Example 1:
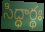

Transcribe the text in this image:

సిద్ధార్థః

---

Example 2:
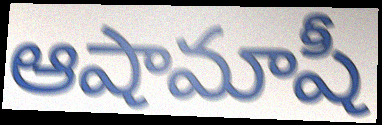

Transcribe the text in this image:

ఆషామాషీ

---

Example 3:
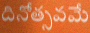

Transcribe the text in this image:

దినోత్సవమే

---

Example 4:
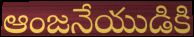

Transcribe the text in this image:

ఆంజనేయుడికి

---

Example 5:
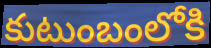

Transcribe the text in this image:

కుటుంబంలోకి